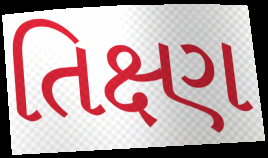
તિક્ષ્ણ